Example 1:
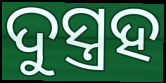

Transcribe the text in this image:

ଦୁସ୍ତ୍ରହ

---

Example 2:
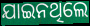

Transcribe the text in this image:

ଯାଇନଥିଲେ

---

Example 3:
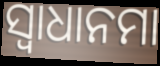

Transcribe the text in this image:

ସ୍ଵାଧାନମା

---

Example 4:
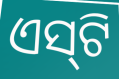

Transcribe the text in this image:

ଏସ୍‌ଟି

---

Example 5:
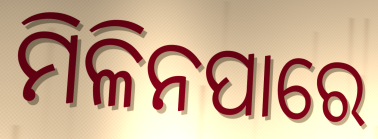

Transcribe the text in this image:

ମିଳିନପାରେ